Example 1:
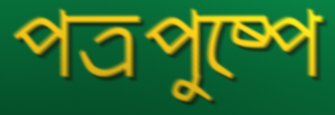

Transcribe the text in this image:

পত্রপুষ্পে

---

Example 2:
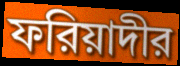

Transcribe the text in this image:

ফরিয়াদীর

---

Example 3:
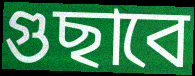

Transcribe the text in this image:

গুছাবে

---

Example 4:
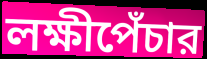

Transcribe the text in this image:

লক্ষীপেঁচার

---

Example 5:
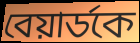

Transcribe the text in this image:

বেয়ার্ডকে